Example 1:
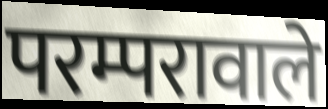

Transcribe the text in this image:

परम्परावाले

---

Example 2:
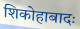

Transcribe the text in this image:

शिकोहाबादः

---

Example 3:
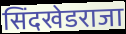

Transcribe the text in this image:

सिंदखेडराजा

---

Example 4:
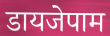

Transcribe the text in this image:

डायजेपाम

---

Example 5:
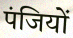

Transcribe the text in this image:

पंजियों